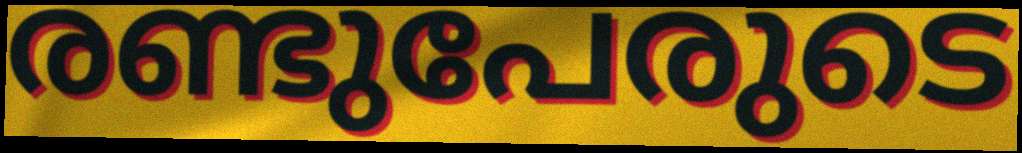
രണ്ടുപേരുടെ